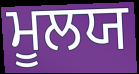
ਮੂਲਯ